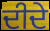
ਦੀਦੇ